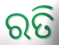
ରତି